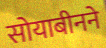
सोयाबीनने